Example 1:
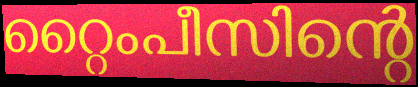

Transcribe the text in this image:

റ്റൈംപീസിന്റെ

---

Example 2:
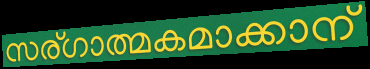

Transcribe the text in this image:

സര്ഗാത്മകമാക്കാന്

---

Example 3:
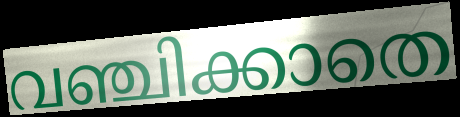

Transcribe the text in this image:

വഞ്ചിക്കാതെ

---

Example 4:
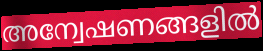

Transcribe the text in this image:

അന്വേഷണങ്ങളിൽ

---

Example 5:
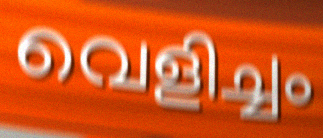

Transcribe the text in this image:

വെളിച്ചം